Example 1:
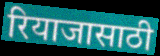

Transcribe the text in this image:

रियाजासाठी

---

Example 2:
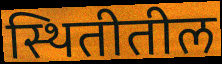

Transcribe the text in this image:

स्थितीतील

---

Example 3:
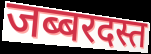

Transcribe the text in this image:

जब्बरदस्त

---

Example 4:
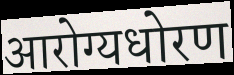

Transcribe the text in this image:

आरोग्यधोरण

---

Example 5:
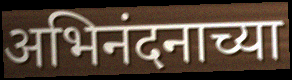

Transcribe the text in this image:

अभिनंदनाच्या